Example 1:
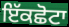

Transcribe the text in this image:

ਇੱਕਛੋਟਾ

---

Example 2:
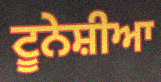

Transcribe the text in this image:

ਟੂਨੇਸ਼ੀਆ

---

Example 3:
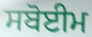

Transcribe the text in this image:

ਸਬੋਈਮ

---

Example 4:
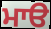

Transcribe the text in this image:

ਮਾੳ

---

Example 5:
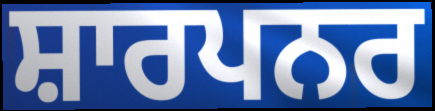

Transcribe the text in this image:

ਸ਼ਾਰਪਨਰ